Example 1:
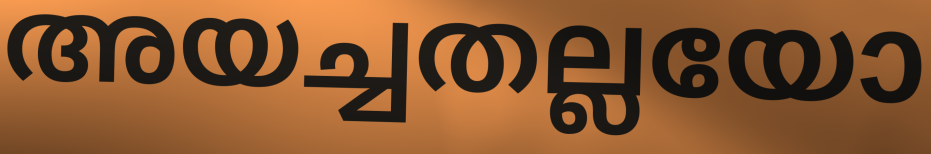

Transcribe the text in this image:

അയച്ചതല്ലയോ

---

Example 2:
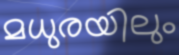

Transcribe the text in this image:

മധുരയിലും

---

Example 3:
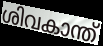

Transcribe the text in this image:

ശിവകാന്ത്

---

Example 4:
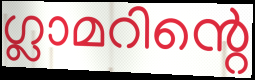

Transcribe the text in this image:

ഗ്ലാമറിന്റെ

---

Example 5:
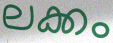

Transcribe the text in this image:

ലക്കം